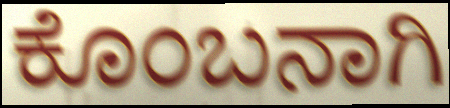
ಕೊಂಬನಾಗಿ